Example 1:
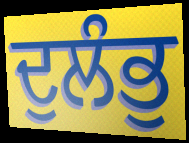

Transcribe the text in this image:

ਦੁਲੰਭੁ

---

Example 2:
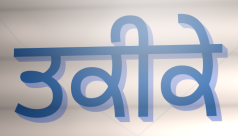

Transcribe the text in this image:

ਤਕੀਕੇ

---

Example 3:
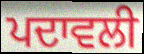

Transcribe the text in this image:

ਪਦਾਵਲੀ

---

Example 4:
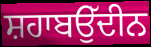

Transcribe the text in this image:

ਸ਼ਹਾਬਉੱਦੀਨ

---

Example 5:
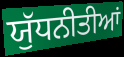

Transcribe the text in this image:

ਯੁੱਧਨੀਤੀਆਂ